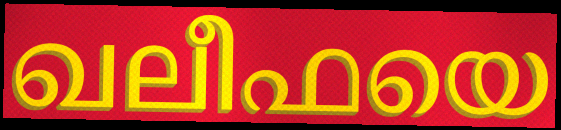
ഖലീഫയെ